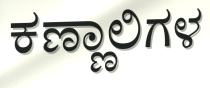
ಕಣ್ಣಾಲಿಗಳ